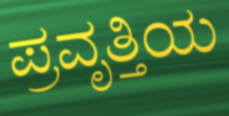
ಪ್ರವೃತ್ತಿಯ